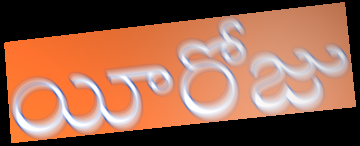
యీరోజు